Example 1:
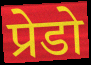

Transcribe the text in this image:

प्रेडो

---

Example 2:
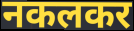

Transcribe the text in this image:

नकलकर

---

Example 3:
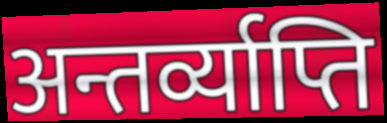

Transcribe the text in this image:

अन्तर्व्याप्ति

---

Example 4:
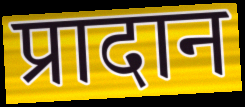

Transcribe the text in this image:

प्रादान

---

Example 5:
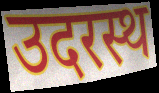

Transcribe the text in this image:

उदरस्थ